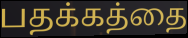
பதக்கத்தை